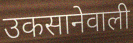
उकसानेवाली